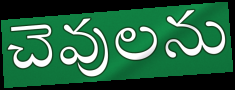
చెవులను